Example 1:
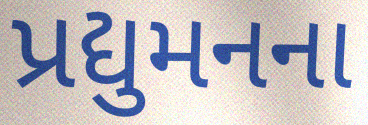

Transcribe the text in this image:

પ્રદ્યુમનના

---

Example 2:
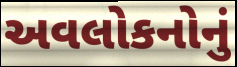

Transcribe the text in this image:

અવલોકનોનું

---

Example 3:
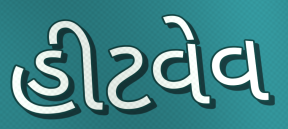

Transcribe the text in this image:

હીટવેવ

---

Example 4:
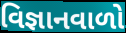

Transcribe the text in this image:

વિજ્ઞાનવાળો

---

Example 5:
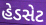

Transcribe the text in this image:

હેડસેટ